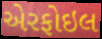
એરફોઇલ